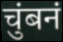
चुंबनं